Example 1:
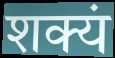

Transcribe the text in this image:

शक्यं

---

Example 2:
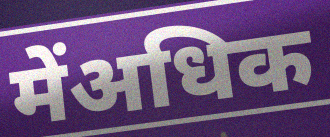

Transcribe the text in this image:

मेंअधिक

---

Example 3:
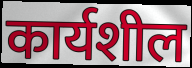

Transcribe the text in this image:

कार्यशील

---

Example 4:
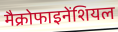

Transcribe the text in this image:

मैक्रोफाइनेंशियल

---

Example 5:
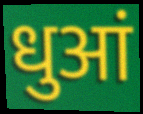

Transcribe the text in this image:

धुआं